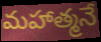
మహాత్మనే